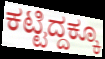
ಕಟ್ಟಿದ್ದಕ್ಕೂ